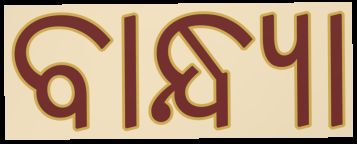
ବାନ୍ଧ୍ୟା